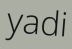
yadi